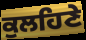
ਕੁਲਹਿਣੇ